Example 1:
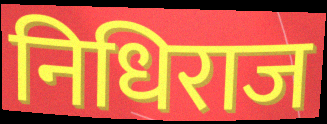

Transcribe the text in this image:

निधिराज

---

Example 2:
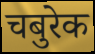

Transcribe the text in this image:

चबुरेक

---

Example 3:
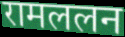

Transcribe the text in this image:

रामललन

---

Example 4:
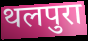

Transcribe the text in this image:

थलपुरा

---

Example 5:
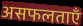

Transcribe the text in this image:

असफलताएँ